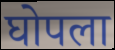
घोपला